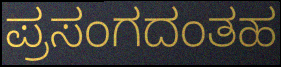
ಪ್ರಸಂಗದಂತಹ